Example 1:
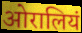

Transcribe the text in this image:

ओरालियं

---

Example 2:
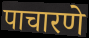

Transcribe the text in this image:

पाचारणे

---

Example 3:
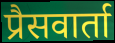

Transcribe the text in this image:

प्रैसवार्ता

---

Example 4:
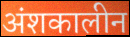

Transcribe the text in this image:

अंशकालीन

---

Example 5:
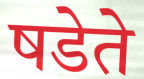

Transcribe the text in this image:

षडेते